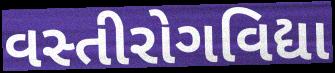
વસ્તીરોગવિદ્યા